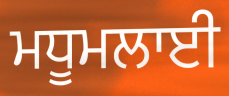
ਮਧੂਮਲਾਈ